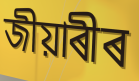
জীয়াৰীৰ